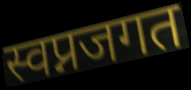
स्वप्नजगत